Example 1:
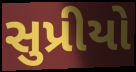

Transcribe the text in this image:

સુપ્રીયો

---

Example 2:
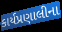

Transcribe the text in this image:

કાર્યપ્રણાલીના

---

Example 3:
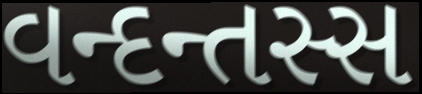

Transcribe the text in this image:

વન્દન્તસ્સ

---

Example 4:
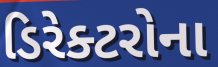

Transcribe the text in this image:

ડિરેક્ટરોના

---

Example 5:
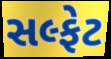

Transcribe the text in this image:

સલ્ફેટ